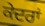
ਕੇਦਰਾਂ